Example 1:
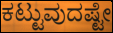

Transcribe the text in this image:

ಕಟ್ಟುವುದಷ್ಟೇ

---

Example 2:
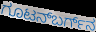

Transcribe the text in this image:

ಗೂಟನ್‌ಬರ್ಗ್‌ನ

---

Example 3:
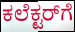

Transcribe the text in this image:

ಕಲೆಕ್ಟರ್‌ಗೆ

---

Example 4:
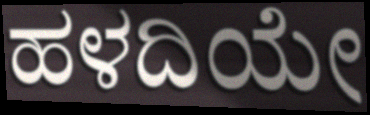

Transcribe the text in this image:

ಹಳದಿಯೇ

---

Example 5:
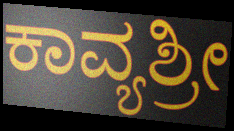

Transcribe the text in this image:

ಕಾವ್ಯಶ್ರೀ